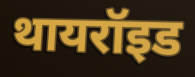
थायरॉइड